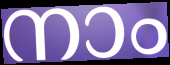
നാം